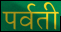
पर्वती